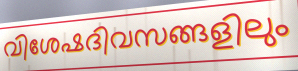
വിശേഷദിവസങ്ങളിലും